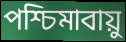
পশ্চিমাবায়ু